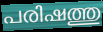
പരിഷത്തു